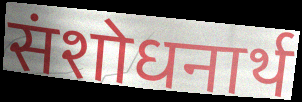
संशोधनार्थ